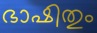
ഭാഷിതും